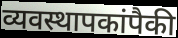
व्यवस्थापकांपैकी